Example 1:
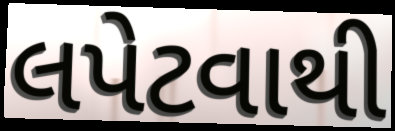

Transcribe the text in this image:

લપેટવાથી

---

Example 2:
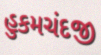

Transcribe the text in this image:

હુકમચંદજી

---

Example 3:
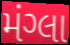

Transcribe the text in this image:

મંગ્લા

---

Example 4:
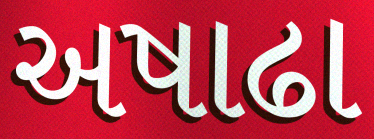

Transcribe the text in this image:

અષાઢા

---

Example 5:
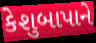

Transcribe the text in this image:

કેશુબાપાને